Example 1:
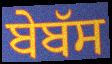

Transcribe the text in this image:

ਬੇਬੱਸ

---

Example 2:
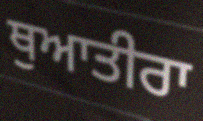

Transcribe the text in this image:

ਥੁਆਤੀਰਾ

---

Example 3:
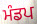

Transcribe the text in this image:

ਮੰਡਪ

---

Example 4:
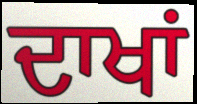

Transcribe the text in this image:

ਦਾਖਾਂ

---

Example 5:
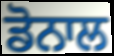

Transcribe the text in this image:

ਡੋਨਾਲ